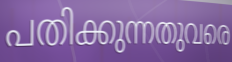
പതിക്കുന്നതുവരെ